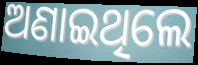
ଅଣାଇଥିଲେ